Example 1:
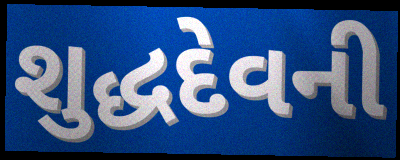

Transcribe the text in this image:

શુદ્ધદેવની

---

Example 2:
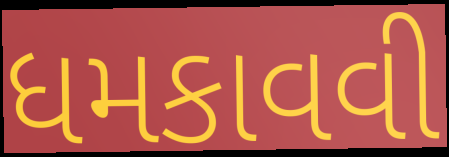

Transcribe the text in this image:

ધમકાવવી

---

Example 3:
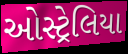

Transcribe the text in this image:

ઓસ્ટ્રેલિયા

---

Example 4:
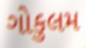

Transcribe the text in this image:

ગોકુલમ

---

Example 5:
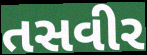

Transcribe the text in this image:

તસવીર